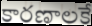
కారణాలకే